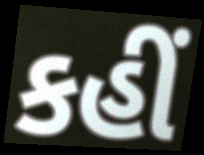
કહીં